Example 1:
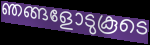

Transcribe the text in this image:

ഞങ്ങളോടുകൂടെ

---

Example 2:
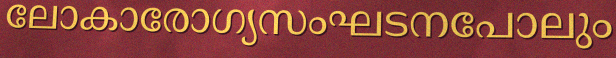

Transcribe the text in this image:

ലോകാരോഗ്യസംഘടനപോലും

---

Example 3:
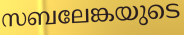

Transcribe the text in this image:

സബലേങ്കയുടെ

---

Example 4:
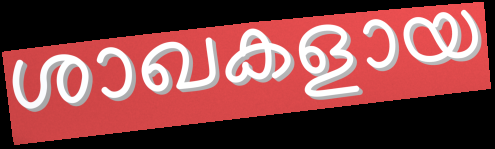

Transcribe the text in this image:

ശാഖകളായ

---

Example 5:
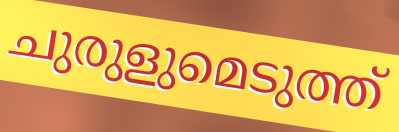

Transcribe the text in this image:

ചുരുളുമെടുത്ത്